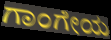
ಗಾಂಗೇಯ